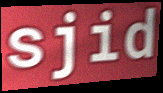
sjid